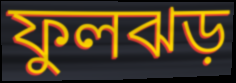
ফুলঝড়